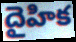
దైహిక